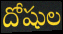
దోషుల